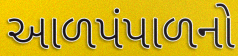
આળપંપાળનો